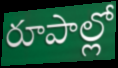
రూపాల్లో